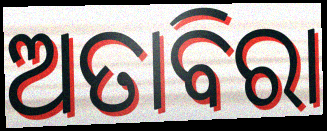
ଅତାବିରା